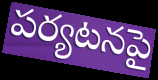
పర్యటనపై